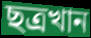
ছত্রখান